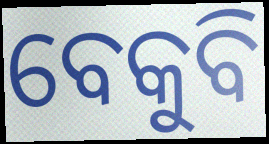
ବେକୁବି